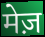
मेज़